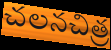
చలనచిత్ర